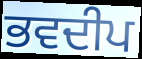
ਭਵਦੀਪ